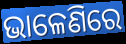
ଭାଳେଣିରେ